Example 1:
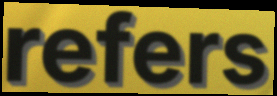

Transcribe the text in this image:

refers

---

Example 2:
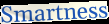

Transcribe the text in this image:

Smartness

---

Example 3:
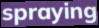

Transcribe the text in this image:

spraying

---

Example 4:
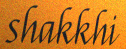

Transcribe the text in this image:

shakkhi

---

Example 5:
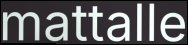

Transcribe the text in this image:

mattalle